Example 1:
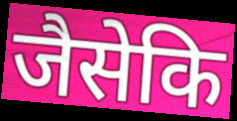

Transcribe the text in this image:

जैसेकि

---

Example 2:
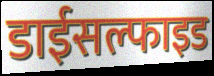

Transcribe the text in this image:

डाईसल्फाइड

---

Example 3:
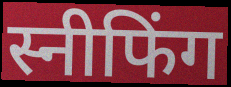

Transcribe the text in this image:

स्नीफिंग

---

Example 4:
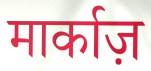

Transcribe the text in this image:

मार्काज़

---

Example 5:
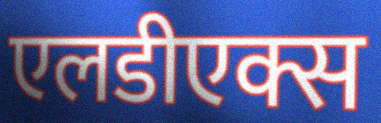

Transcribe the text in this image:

एलडीएक्स